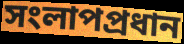
সংলাপপ্রধান